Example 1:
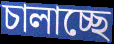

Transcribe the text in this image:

চালাচ্ছে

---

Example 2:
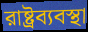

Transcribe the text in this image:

রাষ্ট্রব্যবস্থা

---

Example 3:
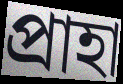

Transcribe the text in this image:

প্রাহা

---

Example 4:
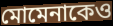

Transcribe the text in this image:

মোমেনাকেও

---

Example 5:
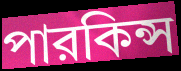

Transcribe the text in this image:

পারকিন্স